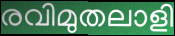
രവിമുതലാളി